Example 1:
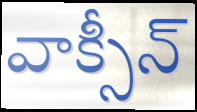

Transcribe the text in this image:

వాక్సీన్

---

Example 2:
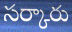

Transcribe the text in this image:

సర్కారు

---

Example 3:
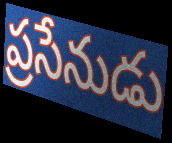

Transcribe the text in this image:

ప్రసేనుడు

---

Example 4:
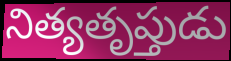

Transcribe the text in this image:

నిత్యతృప్తుడు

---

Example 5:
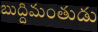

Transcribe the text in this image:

బుద్దిమంతుడు